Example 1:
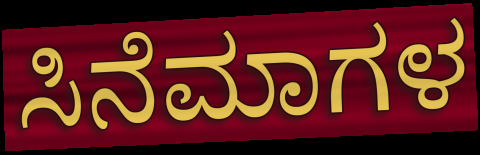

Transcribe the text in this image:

ಸಿನೆಮಾಗಳ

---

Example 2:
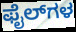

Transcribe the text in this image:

ಫೈಲ್‌ಗಳ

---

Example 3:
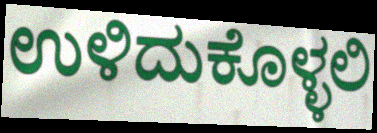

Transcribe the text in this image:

ಉಳಿದುಕೊಳ್ಳಲಿ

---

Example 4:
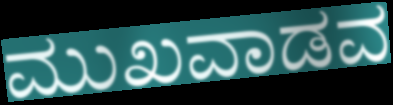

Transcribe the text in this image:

ಮುಖವಾಡವ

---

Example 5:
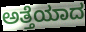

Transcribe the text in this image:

ಅತ್ತೆಯಾದ